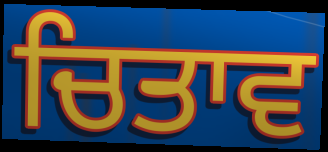
ਚਿਤਾਵ